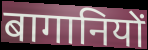
बागानियों